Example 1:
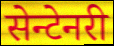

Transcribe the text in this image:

सेन्टेनरी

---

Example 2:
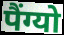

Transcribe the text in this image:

पैंग्यो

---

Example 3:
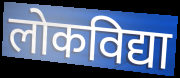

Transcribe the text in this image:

लोकविद्या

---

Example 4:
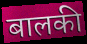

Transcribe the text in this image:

बालकी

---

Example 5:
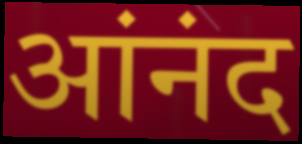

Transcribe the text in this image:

आंनंद